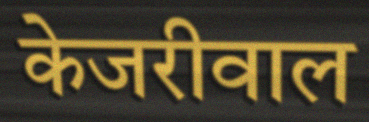
केजरीवाल